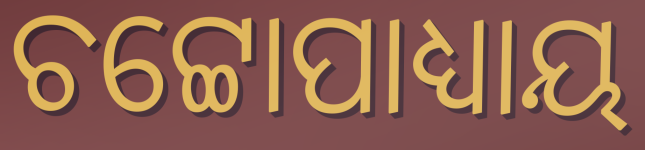
ଚଟ୍ଟୋପାଧ୍ୟାୟ